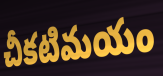
చీకటిమయం